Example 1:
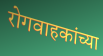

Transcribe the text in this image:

रोगवाहकांच्या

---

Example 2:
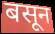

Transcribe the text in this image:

बसून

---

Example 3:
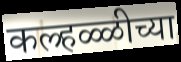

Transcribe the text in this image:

कल्हळ्ळीच्या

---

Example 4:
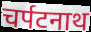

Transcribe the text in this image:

चर्पटनाथ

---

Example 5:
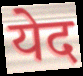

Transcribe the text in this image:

येद